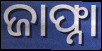
ଜାଫ୍ନା